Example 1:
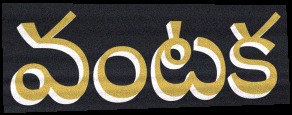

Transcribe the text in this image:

వంటక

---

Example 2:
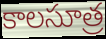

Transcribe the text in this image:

కాలసూత్ర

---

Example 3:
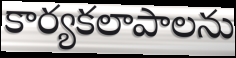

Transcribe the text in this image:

కార్యకలాపాలను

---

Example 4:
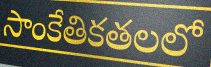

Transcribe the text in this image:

సాంకేతికతలలో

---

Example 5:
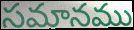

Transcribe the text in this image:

సమానము